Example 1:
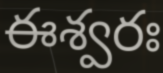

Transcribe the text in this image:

ఈశ్వరః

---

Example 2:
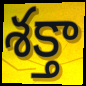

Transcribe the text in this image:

శక్తా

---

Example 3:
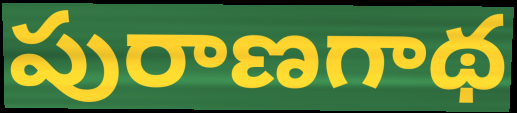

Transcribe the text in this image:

పురాణగాథ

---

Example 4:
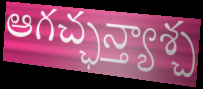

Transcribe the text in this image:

ఆగచ్ఛన్త్యాశ్చ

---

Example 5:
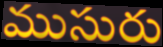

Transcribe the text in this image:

ముసురు